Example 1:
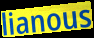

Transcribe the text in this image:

lianous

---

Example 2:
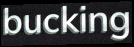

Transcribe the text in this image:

bucking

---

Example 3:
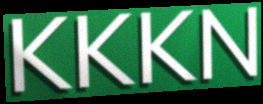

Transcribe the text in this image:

KKKN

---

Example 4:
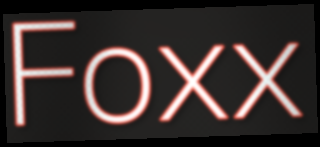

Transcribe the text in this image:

Foxx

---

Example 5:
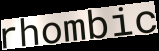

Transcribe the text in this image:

rhombic